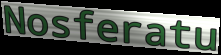
Nosferatu